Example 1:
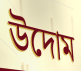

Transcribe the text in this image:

উদোম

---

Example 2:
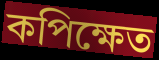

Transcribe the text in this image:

কপিক্ষেত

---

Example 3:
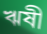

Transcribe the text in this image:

ঋষী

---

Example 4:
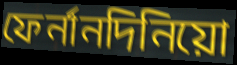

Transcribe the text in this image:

ফের্নানদিনিয়ো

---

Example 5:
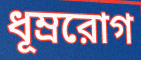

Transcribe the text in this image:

ধূম্ররোগ